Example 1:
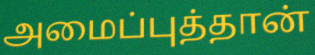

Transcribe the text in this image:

அமைப்புத்தான்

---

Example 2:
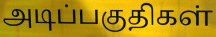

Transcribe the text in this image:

அடிப்பகுதிகள்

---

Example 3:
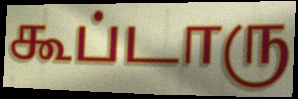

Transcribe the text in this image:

கூப்டாரு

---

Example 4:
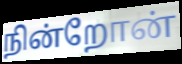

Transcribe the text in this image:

நின்றோன்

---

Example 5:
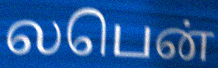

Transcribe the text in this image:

லபென்